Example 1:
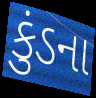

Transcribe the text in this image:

કુંડના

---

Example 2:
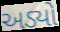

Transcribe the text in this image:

અડ્યો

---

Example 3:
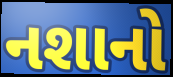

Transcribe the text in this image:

નશાનો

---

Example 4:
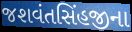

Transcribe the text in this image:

જશવંતસિંહજીના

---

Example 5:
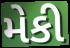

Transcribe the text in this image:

મેકી